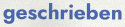
geschrieben